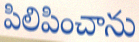
పిలిపించాను